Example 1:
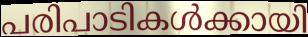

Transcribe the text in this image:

പരിപാടികൾക്കായി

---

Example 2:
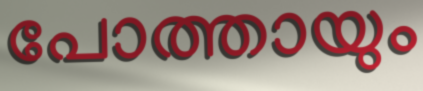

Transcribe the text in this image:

പോത്തായും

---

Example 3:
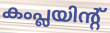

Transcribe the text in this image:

കംപ്ലയിന്റ്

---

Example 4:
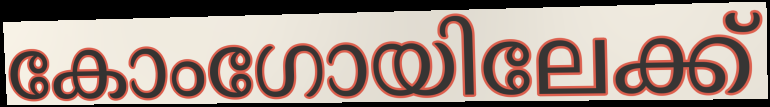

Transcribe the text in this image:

കോംഗോയിലേക്ക്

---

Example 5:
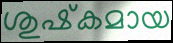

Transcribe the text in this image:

ശുഷ്‌കമായ